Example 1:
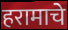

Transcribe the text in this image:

हरामाचे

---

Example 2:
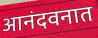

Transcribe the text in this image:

आनंदवनात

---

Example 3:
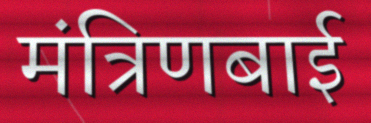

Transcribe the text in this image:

मंत्रिणबाई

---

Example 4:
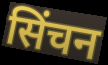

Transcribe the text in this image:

सिंचन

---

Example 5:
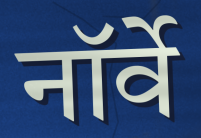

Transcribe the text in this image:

नॉर्वे